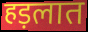
हड़लात